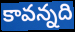
కావన్నది